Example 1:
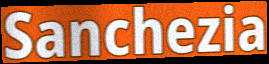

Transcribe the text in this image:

Sanchezia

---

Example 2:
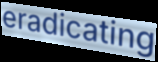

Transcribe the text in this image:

eradicating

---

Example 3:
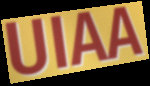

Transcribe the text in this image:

UIAA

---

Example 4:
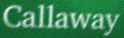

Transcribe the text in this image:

Callaway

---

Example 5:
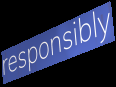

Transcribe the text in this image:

responsibly